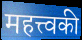
महत्त्वकी